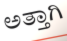
ಅತ್ತಾಗಿ